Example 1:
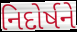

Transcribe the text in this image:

નિદોર્ષને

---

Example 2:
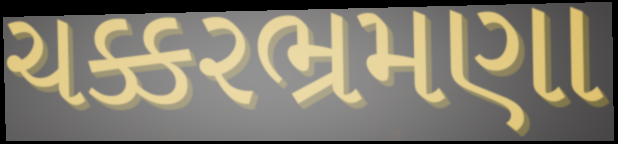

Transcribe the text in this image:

ચક્કરભ્રમણા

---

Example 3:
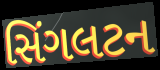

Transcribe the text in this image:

સિંગલટન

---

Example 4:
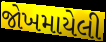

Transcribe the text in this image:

જોખમાયેલી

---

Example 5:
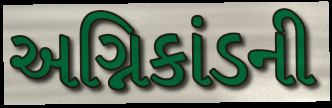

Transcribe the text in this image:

અગ્નિકાંડની